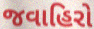
જવાહિરો